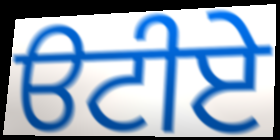
ੳਟੀਏ